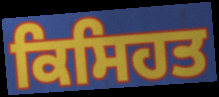
ਕਿਸਿਹਤ